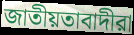
জাতীয়তাবাদীরা